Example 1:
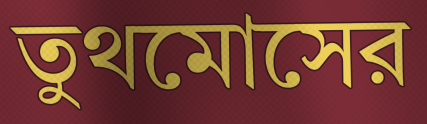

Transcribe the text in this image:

তুথমোসের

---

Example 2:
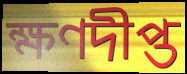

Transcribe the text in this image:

ক্ষণদীপ্ত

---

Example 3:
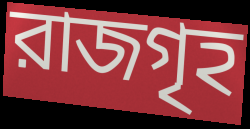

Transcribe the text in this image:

রাজগৃহ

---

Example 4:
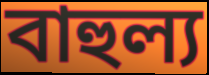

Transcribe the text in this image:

বাহুল্য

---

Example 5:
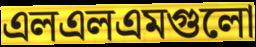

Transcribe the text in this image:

এলএলএমগুলো